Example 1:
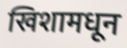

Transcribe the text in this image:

खिशामधून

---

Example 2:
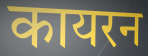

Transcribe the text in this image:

कायरन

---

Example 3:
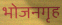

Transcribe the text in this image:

भोजनगृह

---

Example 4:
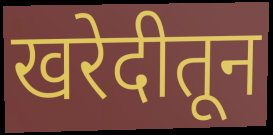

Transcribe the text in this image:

खरेदीतून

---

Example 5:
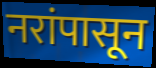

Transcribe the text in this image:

नरांपासून